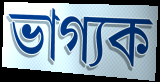
ভাগ্যক